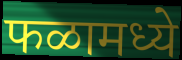
फळामध्ये